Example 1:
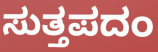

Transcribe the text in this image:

ಸುತ್ತಪದಂ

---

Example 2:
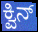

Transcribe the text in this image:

ಕ್ವಿನ್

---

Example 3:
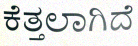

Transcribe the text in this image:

ಕೆತ್ತಲಾಗಿದೆ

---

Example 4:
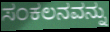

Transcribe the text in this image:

ಸಂಕಲನವನ್ನು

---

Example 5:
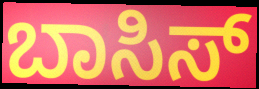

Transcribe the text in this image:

ಬಾಸಿಸ್